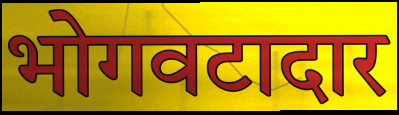
भोगवटादार